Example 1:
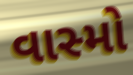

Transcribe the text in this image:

વાસ્મો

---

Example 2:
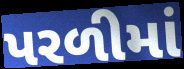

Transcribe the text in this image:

પરળીમાં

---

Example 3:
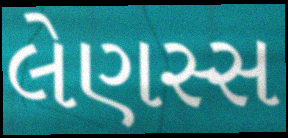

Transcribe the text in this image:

લેણસ્સ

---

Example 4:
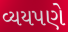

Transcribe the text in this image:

વ્યયપણે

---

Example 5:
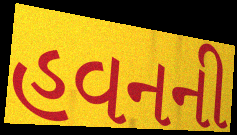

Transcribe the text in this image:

હવનની